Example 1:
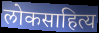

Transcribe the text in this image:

लोकसाहित्य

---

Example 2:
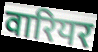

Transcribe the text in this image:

वारियर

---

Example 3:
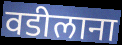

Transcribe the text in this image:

वडीलाना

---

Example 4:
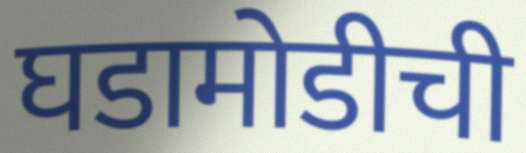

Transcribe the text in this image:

घडामोडीची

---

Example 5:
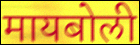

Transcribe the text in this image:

मायबोली